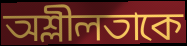
অশ্লীলতাকে